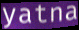
yatna